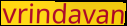
vrindavan